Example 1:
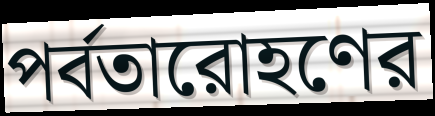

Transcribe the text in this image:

পর্বতারোহণের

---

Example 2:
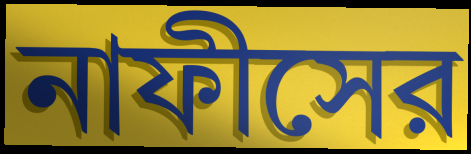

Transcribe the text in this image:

নাফীসের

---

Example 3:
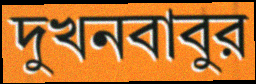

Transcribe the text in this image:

দুখনবাবুর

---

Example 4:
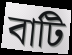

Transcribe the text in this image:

বাটি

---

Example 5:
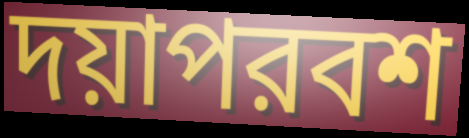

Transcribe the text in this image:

দয়াপরবশ